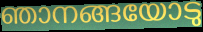
ഞാനങ്ങയോടു